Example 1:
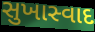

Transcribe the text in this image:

સુખાસ્વાદ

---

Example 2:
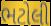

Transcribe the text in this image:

ભટોલી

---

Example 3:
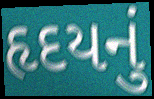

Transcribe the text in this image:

હૃદયનું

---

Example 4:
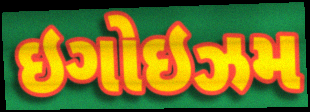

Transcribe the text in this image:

ઇગોઇઝમ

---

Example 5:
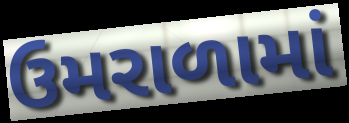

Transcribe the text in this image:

ઉમરાળામાં